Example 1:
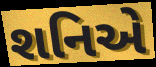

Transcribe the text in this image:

શનિએ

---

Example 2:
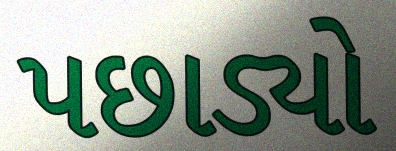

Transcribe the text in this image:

પછાડ્યો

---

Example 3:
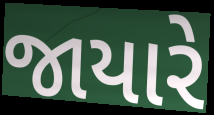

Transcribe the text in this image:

જાયારે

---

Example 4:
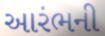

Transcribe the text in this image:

આરંભની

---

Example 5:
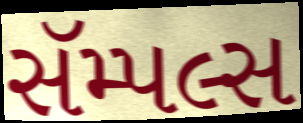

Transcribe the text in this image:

સૅમ્પલ્સ